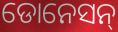
ଡୋନେସନ୍